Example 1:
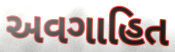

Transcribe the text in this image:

અવગાહિત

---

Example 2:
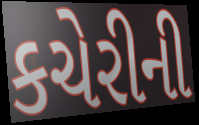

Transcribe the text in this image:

કચેરીની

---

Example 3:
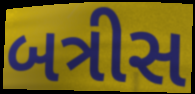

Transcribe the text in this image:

બત્રીસ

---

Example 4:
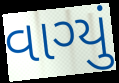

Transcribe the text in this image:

વાગ્યું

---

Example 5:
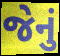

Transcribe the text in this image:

જેનું